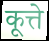
कूत्ते